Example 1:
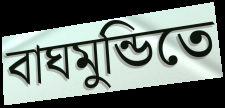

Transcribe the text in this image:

বাঘমুন্ডিতে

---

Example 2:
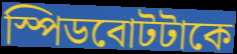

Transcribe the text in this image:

স্পিডবোটটাকে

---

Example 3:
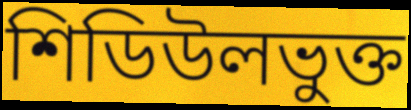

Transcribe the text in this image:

শিডিউলভুক্ত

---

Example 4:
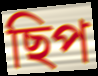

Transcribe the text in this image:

ছিপ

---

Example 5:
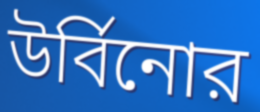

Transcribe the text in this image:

উর্বিনোর